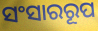
ସଂସାରରୂପ